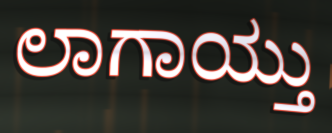
ಲಾಗಾಯ್ತು